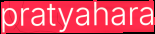
pratyahara